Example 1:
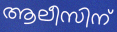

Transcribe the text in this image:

ആലീസിന്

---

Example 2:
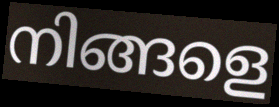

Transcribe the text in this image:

നിങ്ങളെ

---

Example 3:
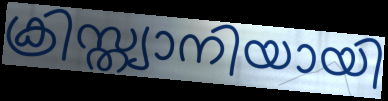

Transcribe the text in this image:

ക്രിസ്ത്യാനിയായി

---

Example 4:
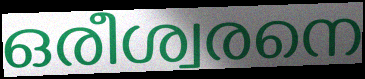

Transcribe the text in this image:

ഒരീശ്വരനെ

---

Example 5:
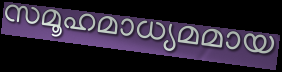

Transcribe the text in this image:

സമൂഹമാധ്യമമായ